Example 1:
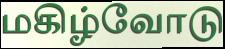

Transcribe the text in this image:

மகிழ்வோடு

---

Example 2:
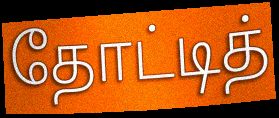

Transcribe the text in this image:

தோட்டித்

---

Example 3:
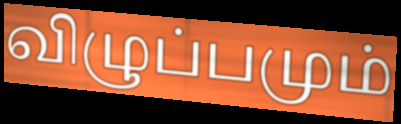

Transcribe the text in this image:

விழுப்பமும்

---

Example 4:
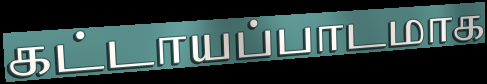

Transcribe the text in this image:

கட்டாயப்பாடமாக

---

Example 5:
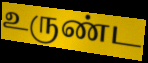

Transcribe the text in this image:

உருண்ட